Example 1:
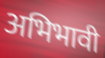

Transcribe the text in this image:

अभिभावी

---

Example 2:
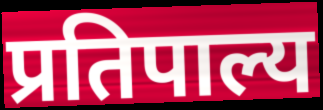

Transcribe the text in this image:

प्रतिपाल्य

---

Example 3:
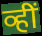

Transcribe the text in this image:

व्हीं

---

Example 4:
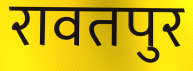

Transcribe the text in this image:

रावतपुर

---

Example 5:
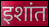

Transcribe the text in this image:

इशांत